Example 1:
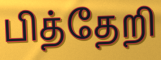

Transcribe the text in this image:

பித்தேறி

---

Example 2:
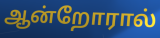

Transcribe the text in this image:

ஆன்றோரால்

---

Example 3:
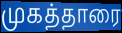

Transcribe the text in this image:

முகத்தாரை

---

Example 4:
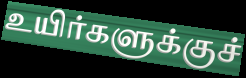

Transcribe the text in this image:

உயிர்களுக்குச்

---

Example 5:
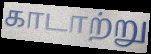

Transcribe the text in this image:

காடாற்று